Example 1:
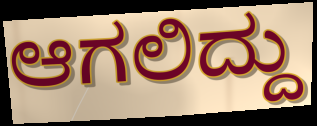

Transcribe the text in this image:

ಆಗಲಿದ್ದು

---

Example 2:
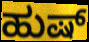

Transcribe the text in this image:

ಹುಷ್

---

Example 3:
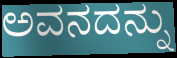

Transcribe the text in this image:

ಅವನದನ್ನು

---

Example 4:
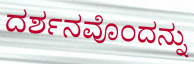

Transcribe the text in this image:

ದರ್ಶನವೊಂದನ್ನು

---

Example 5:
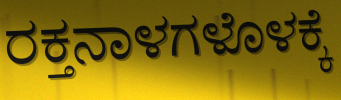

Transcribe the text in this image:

ರಕ್ತನಾಳಗಳೊಳಕ್ಕೆ